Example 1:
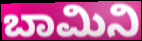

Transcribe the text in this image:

ಬಾಮಿನಿ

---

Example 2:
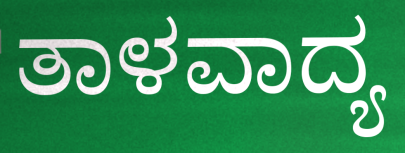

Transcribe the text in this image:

ತಾಳವಾದ್ಯ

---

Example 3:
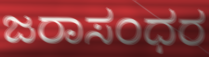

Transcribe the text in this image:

ಜರಾಸಂಧರ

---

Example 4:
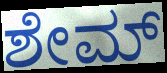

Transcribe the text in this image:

ಶೇಮ್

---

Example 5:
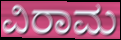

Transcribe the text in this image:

ವಿರಾಮ